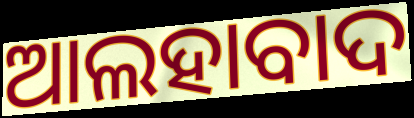
ଆଲହାବାଦ